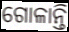
ଗୋଳାନ୍ତି